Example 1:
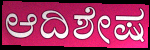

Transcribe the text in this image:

ಆದಿಶೇಷ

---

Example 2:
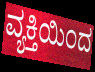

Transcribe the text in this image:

ವ್ಯಕ್ತಿಯಿಂದ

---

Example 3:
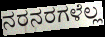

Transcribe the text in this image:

ನರನರಗಳೆಲ್ಲ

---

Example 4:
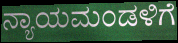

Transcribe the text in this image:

ನ್ಯಾಯಮಂಡಳಿಗೆ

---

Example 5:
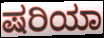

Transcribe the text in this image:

ಷರಿಯಾ